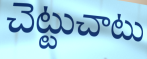
చెట్టుచాటు